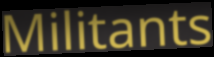
Militants